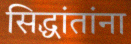
सिद्धांतांना